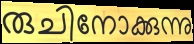
രുചിനോക്കുന്നു